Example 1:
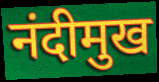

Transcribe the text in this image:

नंदीमुख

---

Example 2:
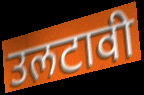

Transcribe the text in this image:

उलटावी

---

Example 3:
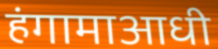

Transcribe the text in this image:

हंगामाआधी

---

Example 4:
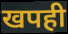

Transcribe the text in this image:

खपही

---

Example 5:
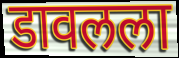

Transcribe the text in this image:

डावलला